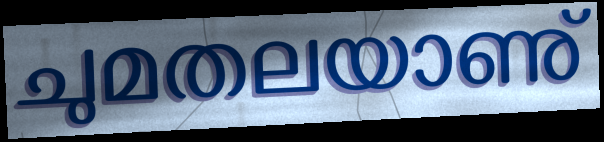
ചുമതലയാണു്